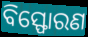
ବିସ୍ଫୋରଣ